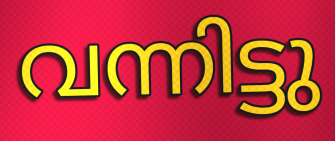
വന്നിട്ടു